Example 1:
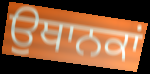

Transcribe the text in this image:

ਉਥਾਨਕਾਂ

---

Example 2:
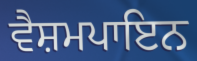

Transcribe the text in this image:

ਵੈਸ਼ਮਪਾਇਨ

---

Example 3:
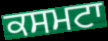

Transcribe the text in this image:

ਕਸਮਟਾ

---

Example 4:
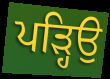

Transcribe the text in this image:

ਪੜ੍ਹਿਉ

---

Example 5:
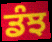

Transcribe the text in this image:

ਡੰਝ